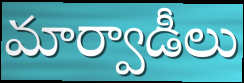
మార్వాడీలు